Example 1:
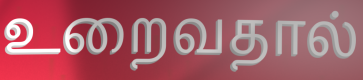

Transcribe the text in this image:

உறைவதால்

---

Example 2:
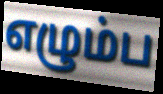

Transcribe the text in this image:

எழும்ப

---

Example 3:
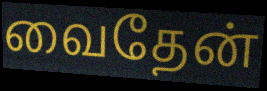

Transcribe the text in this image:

வைதேன்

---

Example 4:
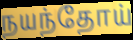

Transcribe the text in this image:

நயந்தோய்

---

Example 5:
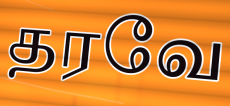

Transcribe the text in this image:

தரவே